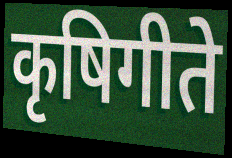
कृषिगीते